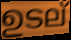
ഉടല്